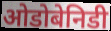
ओडोबेनिडी